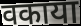
वकाया